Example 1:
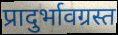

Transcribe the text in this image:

प्रादुर्भावग्रस्त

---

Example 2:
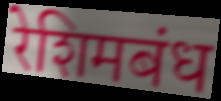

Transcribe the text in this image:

रेशिमबंध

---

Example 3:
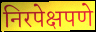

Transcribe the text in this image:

निरपेक्षपणे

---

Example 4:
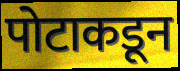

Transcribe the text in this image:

पोटाकडून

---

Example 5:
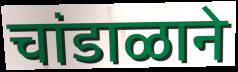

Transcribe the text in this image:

चांडाळाने